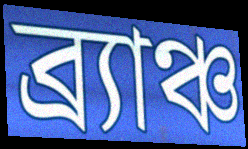
ব্র্যাঞ্চ